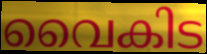
വൈകിട